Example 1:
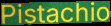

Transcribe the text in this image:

Pistachio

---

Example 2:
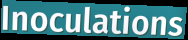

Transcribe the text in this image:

Inoculations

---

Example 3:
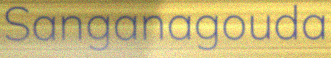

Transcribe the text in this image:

Sanganagouda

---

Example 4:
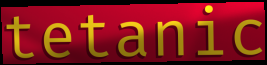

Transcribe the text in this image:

tetanic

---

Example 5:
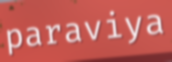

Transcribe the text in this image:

paraviya